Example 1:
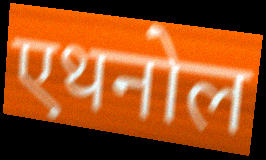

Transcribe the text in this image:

एथनोल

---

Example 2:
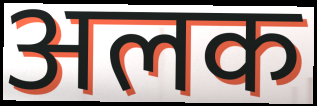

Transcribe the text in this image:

अलक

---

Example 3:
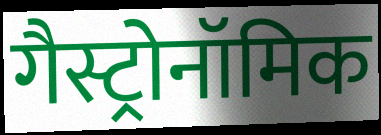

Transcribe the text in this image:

गैस्ट्रोनॉमिक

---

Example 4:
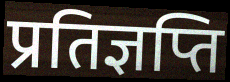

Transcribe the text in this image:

प्रतिज्ञप्ति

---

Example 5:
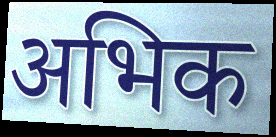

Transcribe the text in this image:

अभिक